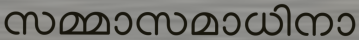
സമ്മാസമാധിനാ